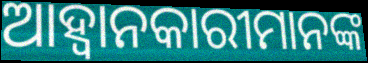
ଆହ୍ଵାନକାରୀମାନଙ୍କ